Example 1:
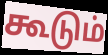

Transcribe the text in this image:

கூடும்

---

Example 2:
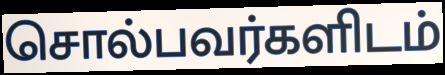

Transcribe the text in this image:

சொல்பவர்களிடம்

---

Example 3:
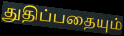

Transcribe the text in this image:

துதிப்பதையும்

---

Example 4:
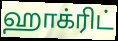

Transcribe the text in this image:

ஹாக்ரிட்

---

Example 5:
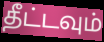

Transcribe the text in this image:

தீட்டவும்